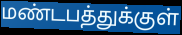
மண்டபத்துக்குள்